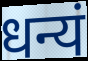
धन्यं